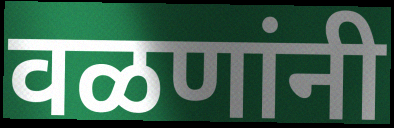
वळणांनी